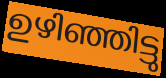
ഉഴിഞ്ഞിട്ടു